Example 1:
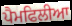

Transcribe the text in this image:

ਪੈਮਫਿਲੀਆ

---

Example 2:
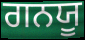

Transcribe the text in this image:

ਗਨਯੂ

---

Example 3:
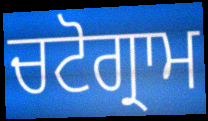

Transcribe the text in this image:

ਚਟੋਗ੍ਰਾਮ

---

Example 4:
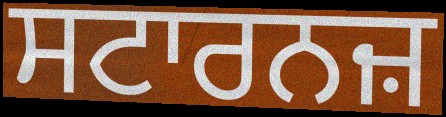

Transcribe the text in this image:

ਸਟਾਰਨਜ਼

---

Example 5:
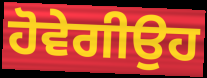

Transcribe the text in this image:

ਹੋਵੇਗੀਉਹ